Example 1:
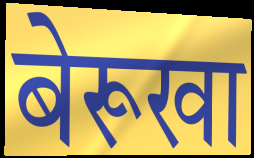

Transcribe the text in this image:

बेरूखा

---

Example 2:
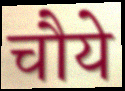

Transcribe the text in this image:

चौये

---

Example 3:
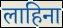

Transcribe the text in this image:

लाहिना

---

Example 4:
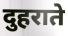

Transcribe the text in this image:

दुहराते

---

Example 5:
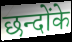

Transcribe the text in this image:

छन्दोंके